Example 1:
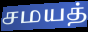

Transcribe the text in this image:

சமயத்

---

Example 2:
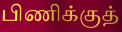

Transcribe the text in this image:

பிணிக்குத்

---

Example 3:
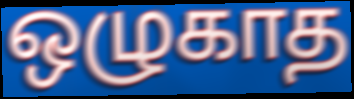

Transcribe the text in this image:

ஒழுகாத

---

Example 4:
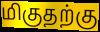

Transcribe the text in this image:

மிகுதற்கு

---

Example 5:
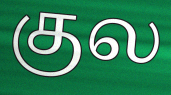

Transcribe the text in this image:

குல